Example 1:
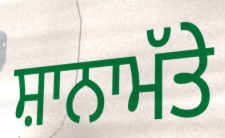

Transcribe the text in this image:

ਸ਼ਾਨਾਮੱਤੇ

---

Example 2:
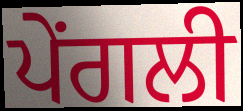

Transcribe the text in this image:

ਪੇਂਗਲੀ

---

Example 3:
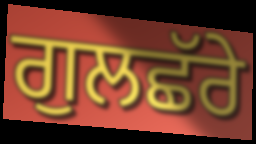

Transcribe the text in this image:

ਗੁਲਛੱਰੇ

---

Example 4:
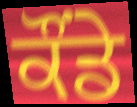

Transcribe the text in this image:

ਕੌਂਡੇ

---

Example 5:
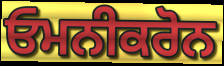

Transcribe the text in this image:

ਓਮਨੀਕਰੋਨ